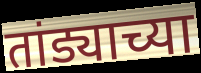
तांड्याच्या